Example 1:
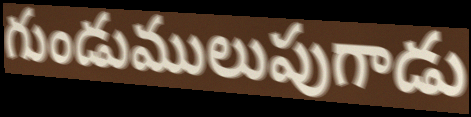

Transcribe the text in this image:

గుండుములుపుగాడు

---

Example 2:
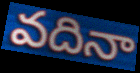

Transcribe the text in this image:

వదినా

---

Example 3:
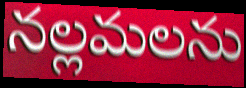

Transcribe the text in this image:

నల్లమలను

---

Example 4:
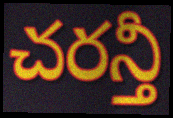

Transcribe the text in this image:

చరన్తీ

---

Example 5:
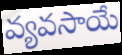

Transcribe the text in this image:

వ్యవసాయే